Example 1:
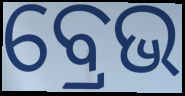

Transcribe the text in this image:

ବ୍ରେଭ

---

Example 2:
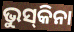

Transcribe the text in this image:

ଭୁସ୍‌କିନା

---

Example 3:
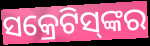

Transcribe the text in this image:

ସକ୍ରେଟିସ୍‌ଙ୍କର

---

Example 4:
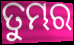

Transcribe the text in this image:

ତୁମ୍ଭର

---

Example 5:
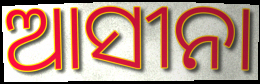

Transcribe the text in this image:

ଆସୀନା